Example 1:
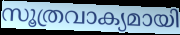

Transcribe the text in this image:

സൂത്രവാക്യമായി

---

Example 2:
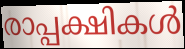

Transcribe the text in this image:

രാപ്പക്ഷികൾ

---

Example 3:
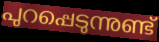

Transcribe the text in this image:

പുറപ്പെടുന്നുണ്ട്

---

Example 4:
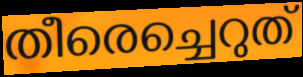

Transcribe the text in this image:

തീരെച്ചെറുത്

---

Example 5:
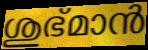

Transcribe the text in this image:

ശുഭ്മാൻ